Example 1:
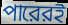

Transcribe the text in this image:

পারেরই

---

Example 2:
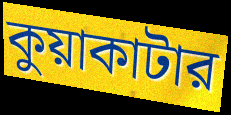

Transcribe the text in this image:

কুয়াকাটার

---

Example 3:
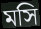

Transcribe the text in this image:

মসি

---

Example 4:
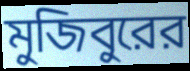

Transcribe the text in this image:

মুজিবুরের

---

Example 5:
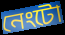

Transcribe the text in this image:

নেংটো